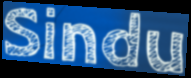
Sindu